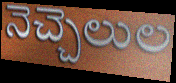
నెచ్చెలుల